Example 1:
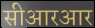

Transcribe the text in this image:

सीआरआर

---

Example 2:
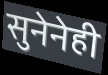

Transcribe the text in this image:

सुनेनेही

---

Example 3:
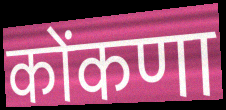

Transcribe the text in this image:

कोंकणा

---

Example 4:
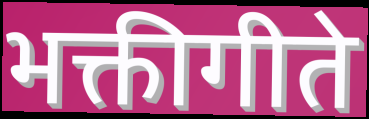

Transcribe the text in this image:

भक्तीगीते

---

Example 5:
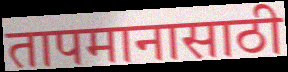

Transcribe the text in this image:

तापमानासाठी